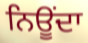
ਨਿਊਂਦਾ